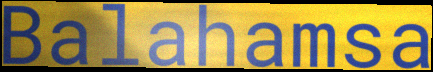
Balahamsa